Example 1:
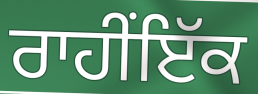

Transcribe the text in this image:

ਰਾਹੀਂਇੱਕ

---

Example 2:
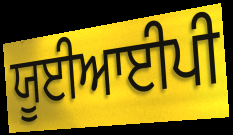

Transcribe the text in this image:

ਯੂਈਆਈਪੀ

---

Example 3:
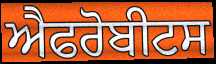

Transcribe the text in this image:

ਐਫਰੋਬੀਟਸ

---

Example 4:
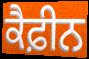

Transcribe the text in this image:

ਕੈਫ਼ੀਨ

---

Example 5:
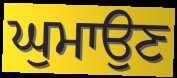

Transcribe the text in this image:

ਘੁਮਾਉਣ